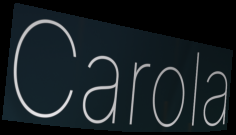
Carola